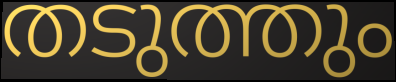
തടുത്തും